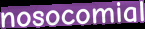
nosocomial